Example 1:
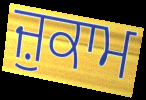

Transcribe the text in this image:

ਜ਼ੁਕਾਮ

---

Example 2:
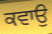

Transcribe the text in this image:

ਕਵਾਉ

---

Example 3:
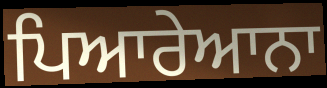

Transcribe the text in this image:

ਪਿਆਰੇਆਨਾ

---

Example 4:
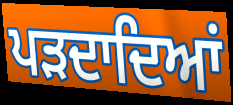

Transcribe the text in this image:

ਪੜਦਾਦਿਆਂ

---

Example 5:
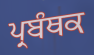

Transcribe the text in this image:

ਪ੍ਰਬੰਥਕ